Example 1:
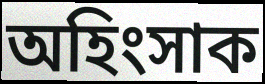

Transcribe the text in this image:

অহিংসাক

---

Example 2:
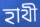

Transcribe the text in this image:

হাথী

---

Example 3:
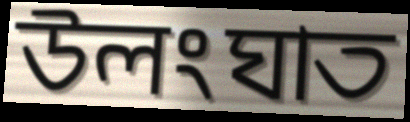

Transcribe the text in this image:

উলংঘাত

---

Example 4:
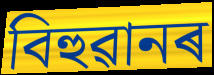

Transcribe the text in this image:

বিহুৱানৰ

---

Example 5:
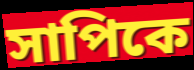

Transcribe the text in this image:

সাপিকে